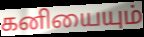
கனியையும்